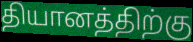
தியானத்திற்கு